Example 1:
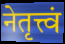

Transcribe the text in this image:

नेतृत्त्वं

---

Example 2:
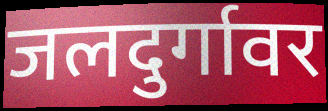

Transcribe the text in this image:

जलदुर्गावर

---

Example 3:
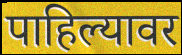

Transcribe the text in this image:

पाहिल्यावर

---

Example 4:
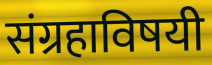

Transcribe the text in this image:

संग्रहाविषयी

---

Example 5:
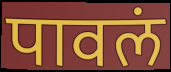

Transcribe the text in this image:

पावलं